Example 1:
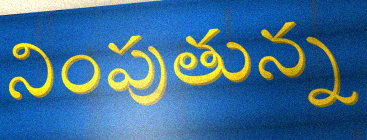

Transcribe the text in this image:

నింపుతున్న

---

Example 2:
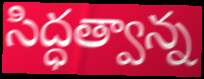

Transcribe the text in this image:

సిద్ధత్వాన్న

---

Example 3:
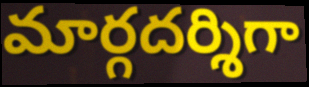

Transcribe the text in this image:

మార్గదర్శిగా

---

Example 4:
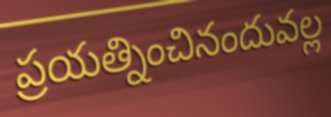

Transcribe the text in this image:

ప్రయత్నించినందువల్ల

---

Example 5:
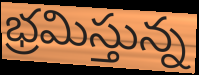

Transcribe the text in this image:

భ్రమిస్తున్న